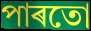
পাৰতো